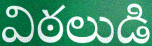
విఠలుడి